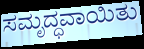
ಸಮೃದ್ಧವಾಯಿತು